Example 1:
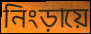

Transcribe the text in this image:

নিংড়ায়ে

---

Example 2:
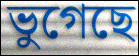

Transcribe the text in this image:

ভুগেছে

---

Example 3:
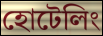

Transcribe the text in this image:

হোটেলিং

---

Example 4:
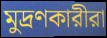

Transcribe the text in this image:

মুদ্রণকারীরা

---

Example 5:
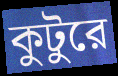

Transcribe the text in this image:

কুটুরে